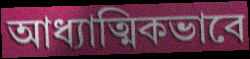
আধ্যাত্মিকভাবে